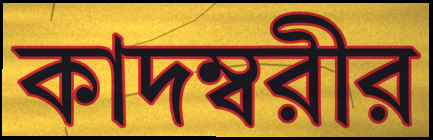
কাদম্বরীর